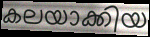
കലയാക്കിയ